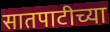
सातपाटीच्या